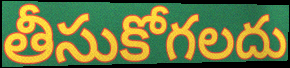
తీసుకోగలదు